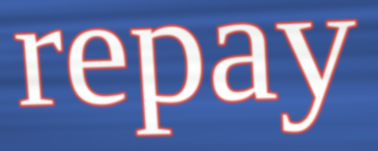
repay